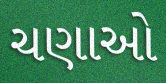
ચણાઓ